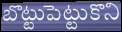
బొట్టుపెట్టుకొని